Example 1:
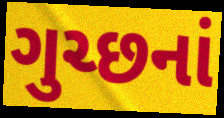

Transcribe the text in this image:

ગુચ્છનાં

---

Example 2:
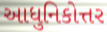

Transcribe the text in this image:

આધુનિકોત્તર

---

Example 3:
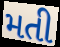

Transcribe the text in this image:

મતી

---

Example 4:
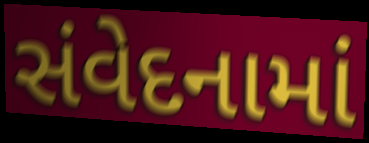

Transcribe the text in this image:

સંવેદનામાં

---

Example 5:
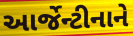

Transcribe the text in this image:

આર્જેન્ટીનાને